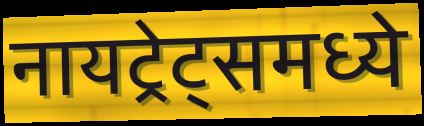
नायट्रेट्समध्ये